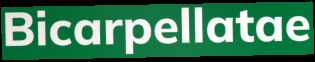
Bicarpellatae